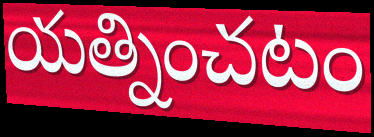
యత్నించటం